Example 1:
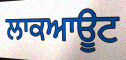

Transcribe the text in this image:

ਲਾਕਆਊਟ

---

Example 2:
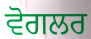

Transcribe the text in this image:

ਵੋਗਲਰ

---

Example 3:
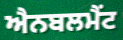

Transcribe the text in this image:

ਐਨਬਲਮੈਂਟ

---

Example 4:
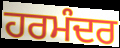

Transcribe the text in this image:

ਹਰਮੰਦਰ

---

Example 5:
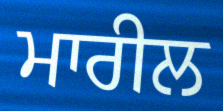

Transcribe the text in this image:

ਮਾਰੀਲ